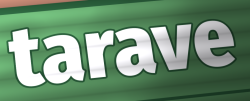
tarave